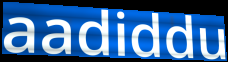
aadiddu